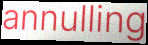
annulling